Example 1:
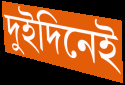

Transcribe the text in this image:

দুইদিনেই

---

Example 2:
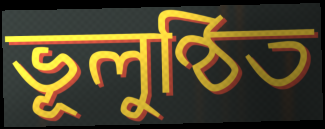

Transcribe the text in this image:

ভূলুণ্ঠিত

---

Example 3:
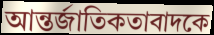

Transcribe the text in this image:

আন্তর্জাতিকতাবাদকে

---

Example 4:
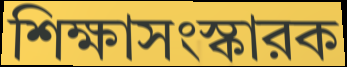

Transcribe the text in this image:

শিক্ষাসংস্কারক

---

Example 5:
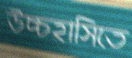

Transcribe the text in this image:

উচ্চহাসিতে